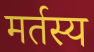
मर्तस्य